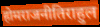
होमराजनीतिराहुल